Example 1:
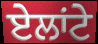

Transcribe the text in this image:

ਏਲਾਂਟੇ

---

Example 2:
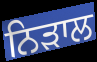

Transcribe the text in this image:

ਨਿੜਾਲ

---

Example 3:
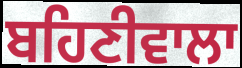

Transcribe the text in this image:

ਬਹਿਣੀਵਾਲਾ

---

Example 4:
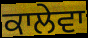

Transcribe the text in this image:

ਕਾਲੇਵਾ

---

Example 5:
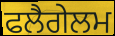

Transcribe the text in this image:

ਫਲੈਗੇਲਮ